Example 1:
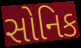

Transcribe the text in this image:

સોનિક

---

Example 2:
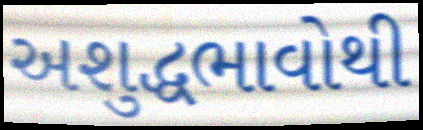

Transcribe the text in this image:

અશુદ્ધભાવોથી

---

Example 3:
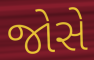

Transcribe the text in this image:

જોસે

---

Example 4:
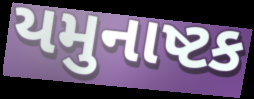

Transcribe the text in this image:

યમુનાષ્ટક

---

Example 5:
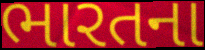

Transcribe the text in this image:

ભારતના